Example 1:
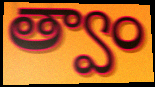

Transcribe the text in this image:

త్వాం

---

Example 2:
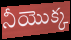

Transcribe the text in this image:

నీయొక్క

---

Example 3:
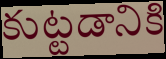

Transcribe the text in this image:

కుట్టడానికి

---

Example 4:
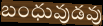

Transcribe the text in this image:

బంధువుడవు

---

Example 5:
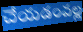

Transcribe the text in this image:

చేయడంవల్ల